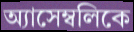
অ্যাসেম্বলিকে